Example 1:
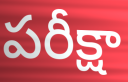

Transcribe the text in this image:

పరీక్షా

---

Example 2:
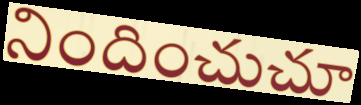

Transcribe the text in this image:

నిందించుచూ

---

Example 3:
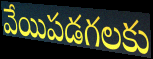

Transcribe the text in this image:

వేయిపడగలకు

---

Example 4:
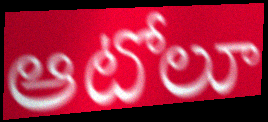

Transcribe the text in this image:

ఆటోలూ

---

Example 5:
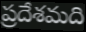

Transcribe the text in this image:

ప్రదేశమది